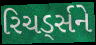
રિચર્ડ્સને